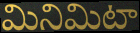
మినిమిటా